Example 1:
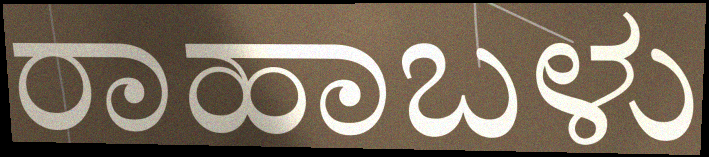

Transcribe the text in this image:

ರಾಹಾಬಳು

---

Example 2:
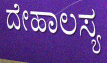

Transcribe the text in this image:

ದೇಹಾಲಸ್ಯ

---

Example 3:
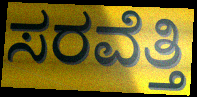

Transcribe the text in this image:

ಸರವೆತ್ತಿ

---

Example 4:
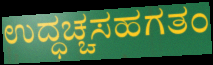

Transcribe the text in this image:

ಉದ್ಧಚ್ಚಸಹಗತಂ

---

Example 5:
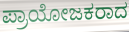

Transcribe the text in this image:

ಪ್ರಾಯೋಜಕರಾದ